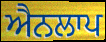
ਐਨਲਾਪ